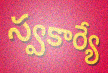
స్వకార్యే